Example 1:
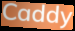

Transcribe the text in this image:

Caddy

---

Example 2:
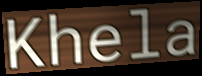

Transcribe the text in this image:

Khela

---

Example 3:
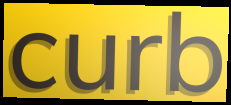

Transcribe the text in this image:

curb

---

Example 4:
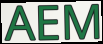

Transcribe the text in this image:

AEM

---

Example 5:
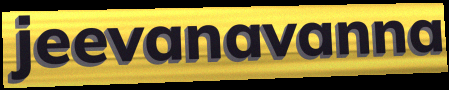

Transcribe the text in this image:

jeevanavanna